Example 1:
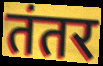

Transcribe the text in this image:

तंतर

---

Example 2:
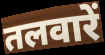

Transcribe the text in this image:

तलवारें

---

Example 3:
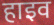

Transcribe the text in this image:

हाइव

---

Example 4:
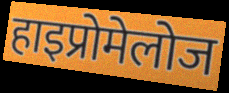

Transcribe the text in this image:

हाइप्रोमेलोज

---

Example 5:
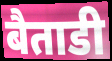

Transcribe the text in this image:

बैताडी